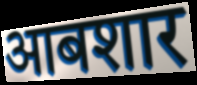
आबशार